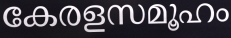
കേരളസമൂഹം